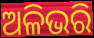
ଅଳିଭରି